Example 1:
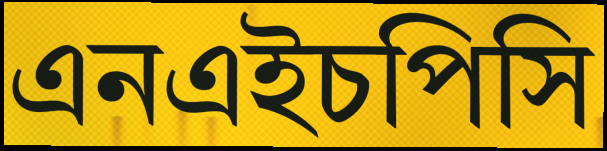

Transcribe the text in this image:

এনএইচপিসি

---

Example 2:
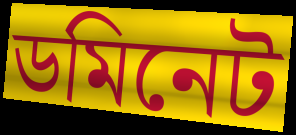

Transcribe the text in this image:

ডমিনেট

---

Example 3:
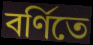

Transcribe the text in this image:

বর্ণিতে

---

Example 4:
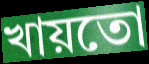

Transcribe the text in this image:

খায়তো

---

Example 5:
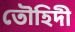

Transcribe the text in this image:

তৌহিদী